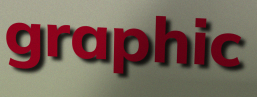
graphic